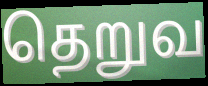
தெறுவ